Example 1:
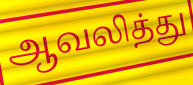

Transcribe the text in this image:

ஆவலித்து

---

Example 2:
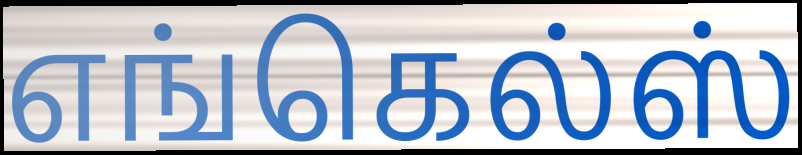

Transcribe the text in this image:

எங்கெல்ஸ்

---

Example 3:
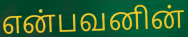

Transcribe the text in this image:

என்பவனின்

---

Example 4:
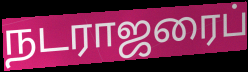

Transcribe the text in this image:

நடராஜரைப்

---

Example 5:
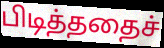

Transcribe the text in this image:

பிடித்ததைச்